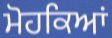
ਮੋਹਕਿਆਂ